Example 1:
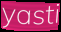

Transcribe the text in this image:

yasti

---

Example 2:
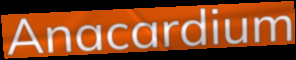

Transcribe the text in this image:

Anacardium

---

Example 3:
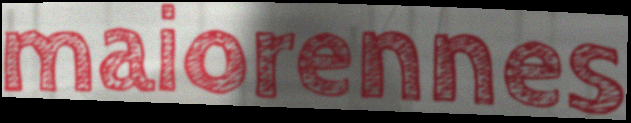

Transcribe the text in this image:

maiorennes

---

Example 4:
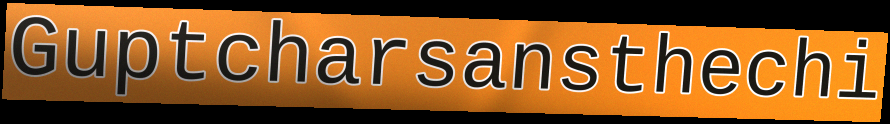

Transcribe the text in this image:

Guptcharsansthechi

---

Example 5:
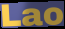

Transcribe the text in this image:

Lao